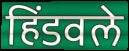
हिंडवले